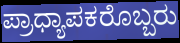
ಪ್ರಾಧ್ಯಾಪಕರೊಬ್ಬರು